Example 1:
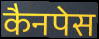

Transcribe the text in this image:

कैनपेस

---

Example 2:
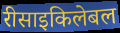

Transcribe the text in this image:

रीसाइकिलेबल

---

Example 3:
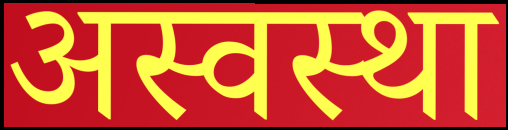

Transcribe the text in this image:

अस्वस्था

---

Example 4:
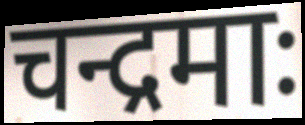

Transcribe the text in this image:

चन्द्रमाः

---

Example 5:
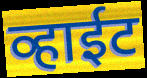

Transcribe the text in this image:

व्हाईट